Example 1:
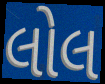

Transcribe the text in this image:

લોલ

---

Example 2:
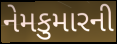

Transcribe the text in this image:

નેમકુમારની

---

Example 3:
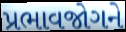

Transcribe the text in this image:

પ્રભાવજોગને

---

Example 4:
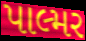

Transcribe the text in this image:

પાલ્મર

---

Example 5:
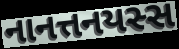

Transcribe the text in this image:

નાનત્તનયસ્સ